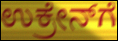
ಉಕ್ರೇನ್‌ಗೆ